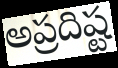
అప్రదిష్ట